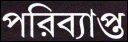
পরিব্যাপ্ত